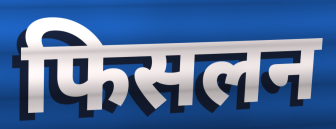
फिसलन